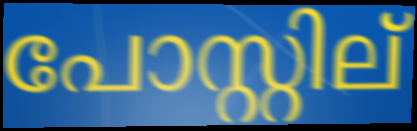
പോസ്റ്റില്